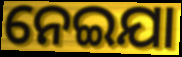
ନେଇଯା